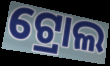
ଟ୍ରୋଲ